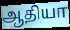
ஆதியா